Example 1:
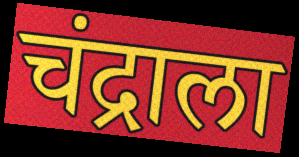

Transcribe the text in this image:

चंद्राला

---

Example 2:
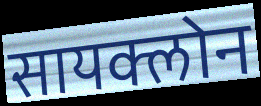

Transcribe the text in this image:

सायक्लोन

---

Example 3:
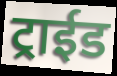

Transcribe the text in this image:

ट्राईड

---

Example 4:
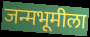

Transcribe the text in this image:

जन्मभूमीला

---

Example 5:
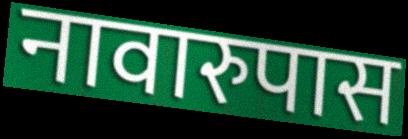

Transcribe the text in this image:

नावारुपास